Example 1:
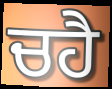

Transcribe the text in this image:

ਚਹੈ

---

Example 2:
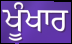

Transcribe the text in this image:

ਖੂੰਖਾਰ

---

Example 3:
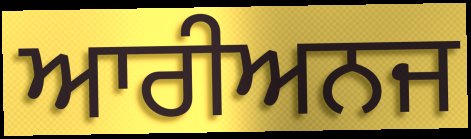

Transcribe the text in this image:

ਆਰੀਅਨਜ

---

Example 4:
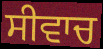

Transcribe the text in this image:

ਸੀਵਾਚ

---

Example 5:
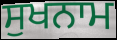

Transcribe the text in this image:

ਸੁਖਨਾਮ